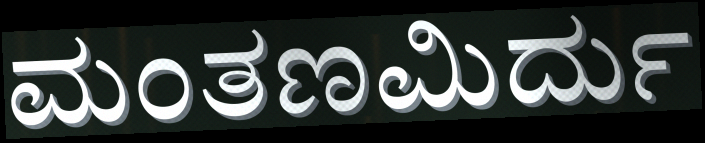
ಮಂತಣಮಿರ್ದು